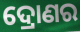
ଦ୍ରୋଣର